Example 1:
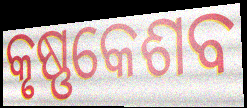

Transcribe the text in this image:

କୃଷ୍ଣକେଶବ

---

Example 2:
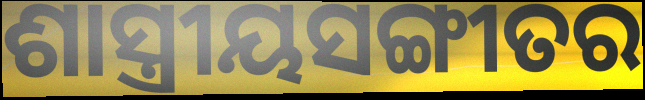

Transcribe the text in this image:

ଶାସ୍ତ୍ରୀୟସଙ୍ଗୀତର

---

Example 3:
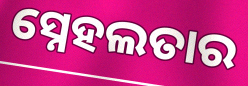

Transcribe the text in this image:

ସ୍ନେହଲତାର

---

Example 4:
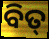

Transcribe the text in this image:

ବିତ୍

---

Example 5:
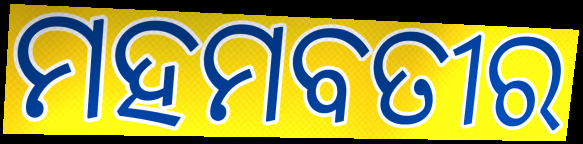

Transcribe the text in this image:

ମହମବତୀର